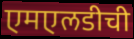
एमएलडीची